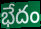
భేదం